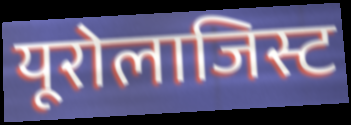
यूरोलाजिस्ट